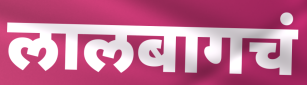
लालबागचं